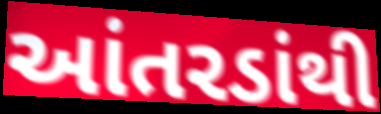
આંતરડાંથી